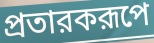
প্রতারকরূপে